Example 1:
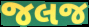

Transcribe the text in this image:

જલજ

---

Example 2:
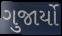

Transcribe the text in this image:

ગુજાર્યો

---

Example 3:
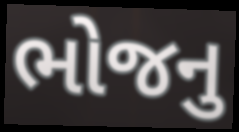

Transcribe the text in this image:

ભોજનુ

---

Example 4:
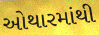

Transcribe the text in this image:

ઓથારમાંથી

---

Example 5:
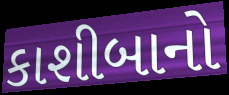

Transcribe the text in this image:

કાશીબાનો